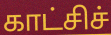
காட்சிச்